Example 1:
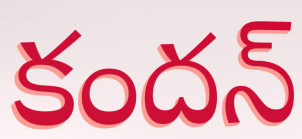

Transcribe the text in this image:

కందన్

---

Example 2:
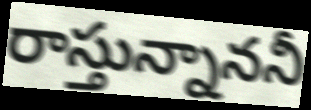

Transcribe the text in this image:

రాస్తున్నాననీ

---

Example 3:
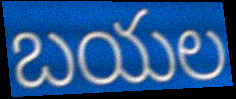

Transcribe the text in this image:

బయల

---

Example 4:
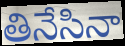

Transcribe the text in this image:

తినేసినా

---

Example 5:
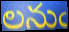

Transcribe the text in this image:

లనుఁ